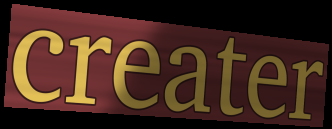
creater